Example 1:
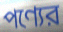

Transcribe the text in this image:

পণ্যের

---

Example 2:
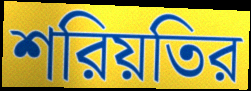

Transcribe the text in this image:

শরিয়তির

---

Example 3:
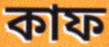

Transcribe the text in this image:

কাফ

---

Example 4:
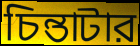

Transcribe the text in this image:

চিন্তাটার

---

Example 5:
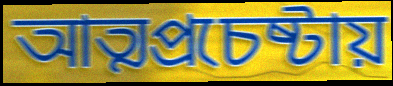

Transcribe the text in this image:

আত্মপ্রচেষ্টায়